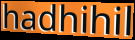
hadhihil